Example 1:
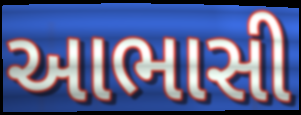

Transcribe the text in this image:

આભાસી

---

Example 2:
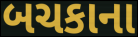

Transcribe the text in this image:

બચકાના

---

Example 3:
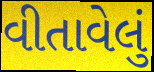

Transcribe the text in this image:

વીતાવેલું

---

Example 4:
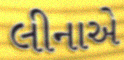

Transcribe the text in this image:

લીનાએ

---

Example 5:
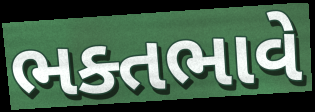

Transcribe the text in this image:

ભક્તભાવે